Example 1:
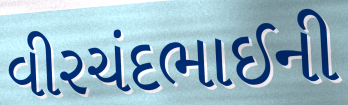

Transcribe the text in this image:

વીરચંદભાઈની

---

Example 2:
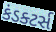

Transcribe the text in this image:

કંડક્ટર્સ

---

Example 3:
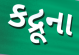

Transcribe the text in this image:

કદ્રૂના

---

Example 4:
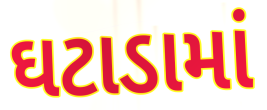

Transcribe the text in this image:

ઘટાડામાં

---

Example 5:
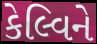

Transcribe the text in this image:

કેલ્વિને